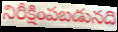
నిరీక్షింపబడునది